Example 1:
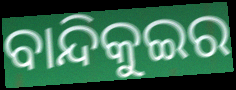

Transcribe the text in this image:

ବାନ୍ଦିକୁଇର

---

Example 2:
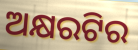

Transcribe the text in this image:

ଅକ୍ଷରଟିର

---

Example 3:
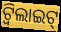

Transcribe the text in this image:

ଟ୍ୱିଲାଇଟ୍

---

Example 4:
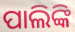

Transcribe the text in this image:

ପାଲିଙ୍କି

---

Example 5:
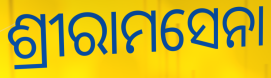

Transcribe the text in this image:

ଶ୍ରୀରାମସେନା